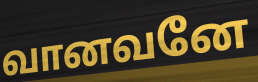
வானவனே